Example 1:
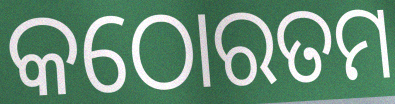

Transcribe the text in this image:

କଠୋରତମ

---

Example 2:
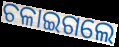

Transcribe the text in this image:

ଚଳାଇଗଲେ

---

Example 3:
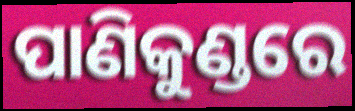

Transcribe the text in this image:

ପାଣିକୁଣ୍ଡରେ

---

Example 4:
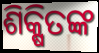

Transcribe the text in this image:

ଶିକ୍ଷିତଙ୍କ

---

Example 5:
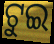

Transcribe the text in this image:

ଟୁଇ